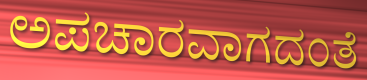
ಅಪಚಾರವಾಗದಂತೆ